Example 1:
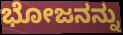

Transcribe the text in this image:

ಭೋಜನನ್ನು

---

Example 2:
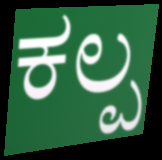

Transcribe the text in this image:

ಕಲ್ಪ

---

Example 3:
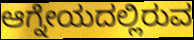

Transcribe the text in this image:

ಆಗ್ನೇಯದಲ್ಲಿರುವ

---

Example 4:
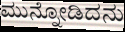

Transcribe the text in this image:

ಮುನ್ನೋಡಿದನು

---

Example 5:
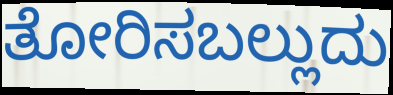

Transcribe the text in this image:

ತೋರಿಸಬಲ್ಲುದು